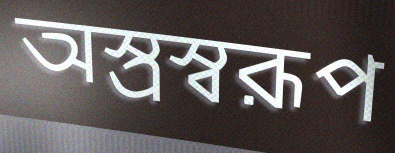
অস্ত্রস্বরূপ